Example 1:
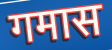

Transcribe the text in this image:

गमास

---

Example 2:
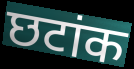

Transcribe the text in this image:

छटांक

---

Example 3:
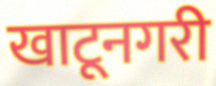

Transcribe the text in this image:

खाटूनगरी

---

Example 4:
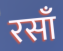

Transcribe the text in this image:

रसाँ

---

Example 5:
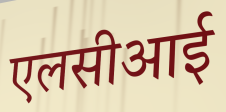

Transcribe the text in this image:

एलसीआई